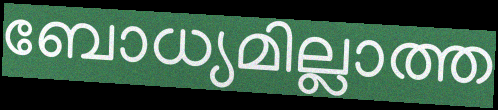
ബോധ്യമില്ലാത്ത